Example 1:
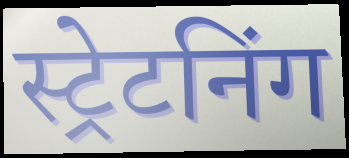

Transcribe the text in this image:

स्ट्रेटनिंग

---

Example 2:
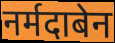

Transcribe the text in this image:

नर्मदाबेन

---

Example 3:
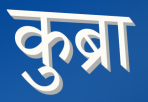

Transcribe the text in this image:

कुब्रा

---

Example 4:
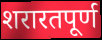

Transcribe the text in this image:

शरारतपूर्ण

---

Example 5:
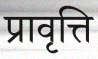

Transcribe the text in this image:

प्रावृत्ति